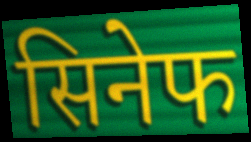
सिनेफ